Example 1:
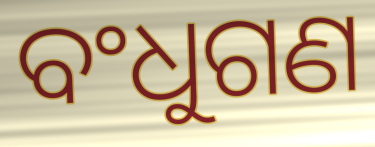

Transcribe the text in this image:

ବଂଧୁଗଣ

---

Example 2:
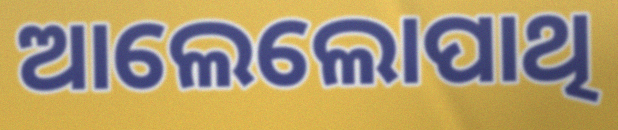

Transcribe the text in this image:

ଆଲେଲୋପାଥି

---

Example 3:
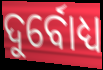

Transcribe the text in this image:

ଦୁର୍ବୋଧ୍ୟ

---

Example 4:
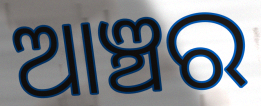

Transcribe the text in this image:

ଆଞ୍ଚର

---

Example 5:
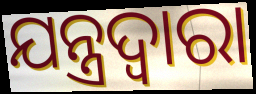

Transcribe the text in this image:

ଯନ୍ତ୍ରଦ୍ବାରା